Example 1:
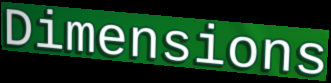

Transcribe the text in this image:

Dimensions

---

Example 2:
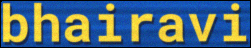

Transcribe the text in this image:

bhairavi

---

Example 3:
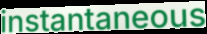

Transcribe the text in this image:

instantaneous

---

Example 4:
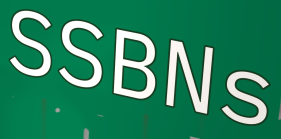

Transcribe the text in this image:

SSBNs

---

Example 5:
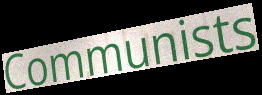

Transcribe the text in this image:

Communists